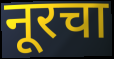
नूरचा